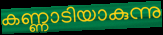
കണ്ണാടിയാകുന്നു